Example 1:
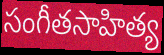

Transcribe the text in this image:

సంగీతసాహిత్య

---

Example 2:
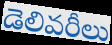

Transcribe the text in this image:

డెలివరీలు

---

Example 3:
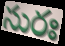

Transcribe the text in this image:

సురః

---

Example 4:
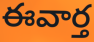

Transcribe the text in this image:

ఈవార్త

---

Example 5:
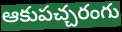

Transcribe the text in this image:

ఆకుపచ్చరంగు